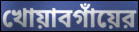
খোয়াবগাঁয়ের